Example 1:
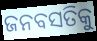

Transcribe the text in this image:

ଜନବସତିକୁ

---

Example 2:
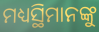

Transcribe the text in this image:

ମଧ୍ୟସ୍ଥିମାନଙ୍କୁ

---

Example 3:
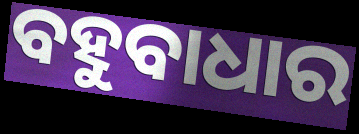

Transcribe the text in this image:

ବହୁବାଧାର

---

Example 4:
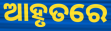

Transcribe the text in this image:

ଆହୃତରେ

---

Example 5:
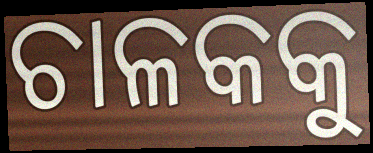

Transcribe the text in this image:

ଚାଳକକୁ